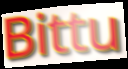
Bittu